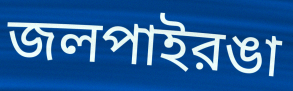
জলপাইরঙা